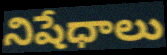
నిషేధాలు